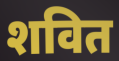
शवित